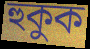
হুকুক